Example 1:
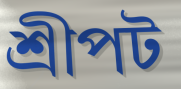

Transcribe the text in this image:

শ্রীপট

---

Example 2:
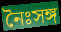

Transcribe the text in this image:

নৈঃসঙ্গ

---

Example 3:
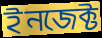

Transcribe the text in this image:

ইনজেক্ট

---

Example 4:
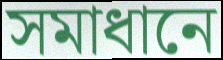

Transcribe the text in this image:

সমাধানে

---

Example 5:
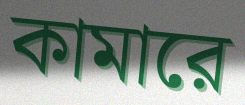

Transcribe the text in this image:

কামারে